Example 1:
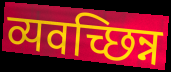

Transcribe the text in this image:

व्यवच्छिन्न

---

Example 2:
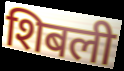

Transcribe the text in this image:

शिबली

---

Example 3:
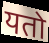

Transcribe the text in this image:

यतो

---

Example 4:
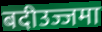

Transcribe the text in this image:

बदीउज्जमा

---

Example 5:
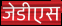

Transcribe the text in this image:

जेडीएस